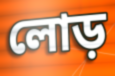
লোড়